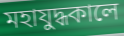
মহাযুদ্ধকালে